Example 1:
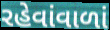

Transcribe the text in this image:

રહેવાંવાળાં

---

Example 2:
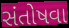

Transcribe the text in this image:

સંતોષવા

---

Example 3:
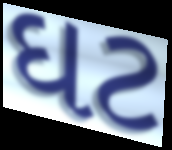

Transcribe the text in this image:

ઘટ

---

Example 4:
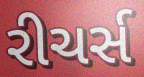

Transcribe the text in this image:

રીચર્સ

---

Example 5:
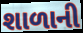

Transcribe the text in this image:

શાળાની